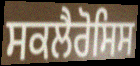
ਸਕਲੈਰੋਸਿਸ